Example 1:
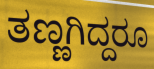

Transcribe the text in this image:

ತಣ್ಣಗಿದ್ದರೂ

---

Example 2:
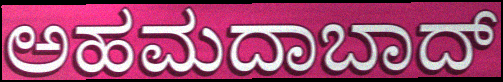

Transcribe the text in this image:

ಅಹಮದಾಬಾದ್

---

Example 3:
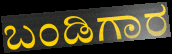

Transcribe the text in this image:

ಬಂಡಿಗಾರ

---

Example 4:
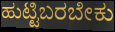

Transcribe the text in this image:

ಹುಟ್ಟಿಬರಬೇಕು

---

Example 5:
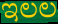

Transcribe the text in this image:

ಇಲಲ